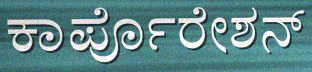
ಕಾರ್ಪೊರೇಶನ್